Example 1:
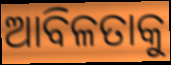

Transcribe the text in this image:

ଆବିଳତାକୁ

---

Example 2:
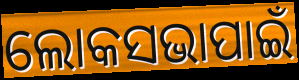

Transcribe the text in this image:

ଲୋକସଭାପାଇଁ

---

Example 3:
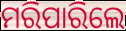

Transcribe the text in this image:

ମରିପାରିଲେ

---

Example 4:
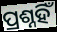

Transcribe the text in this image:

ପ୍ରଶ୍ନହିଁ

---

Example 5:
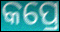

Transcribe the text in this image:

କପ୍ରେ